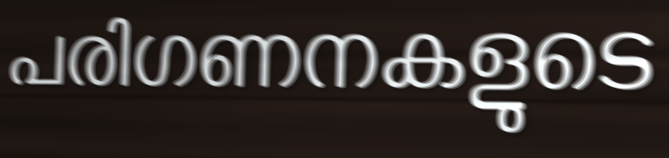
പരിഗണനകളുടെ